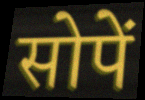
सोपें